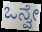
ಒನ್ವೇ